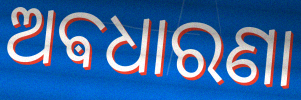
ଅଵଧାରଣା